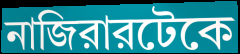
নাজিরারটেকে